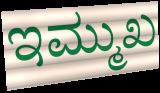
ಇಮ್ಮುಖ